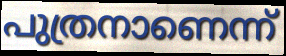
പുത്രനാണെന്ന്